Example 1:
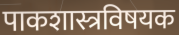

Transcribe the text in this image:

पाकशास्त्रविषयक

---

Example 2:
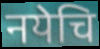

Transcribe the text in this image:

नयेचि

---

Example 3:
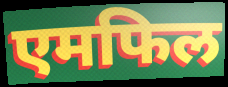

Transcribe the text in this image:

एमफिल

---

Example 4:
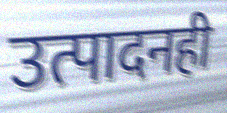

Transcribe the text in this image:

उत्पादनही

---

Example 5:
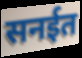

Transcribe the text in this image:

सनईत